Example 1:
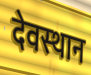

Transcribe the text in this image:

देवस्थान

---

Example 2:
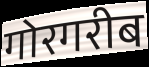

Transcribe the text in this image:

गोरगरीब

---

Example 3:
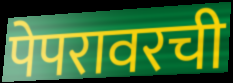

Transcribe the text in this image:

पेपरावरची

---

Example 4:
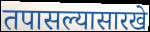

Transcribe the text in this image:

तपासल्यासारखे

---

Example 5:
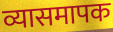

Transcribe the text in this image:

व्यासमापक